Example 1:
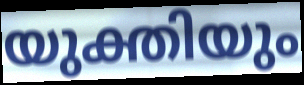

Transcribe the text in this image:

യുക്തിയും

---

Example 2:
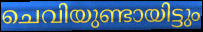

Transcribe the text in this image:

ചെവിയുണ്ടായിട്ടും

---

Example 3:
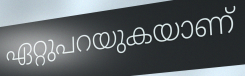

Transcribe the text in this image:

ഏറ്റുപറയുകയാണ്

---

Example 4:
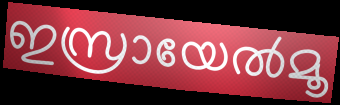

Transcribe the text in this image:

ഇസ്രായേൽമൂ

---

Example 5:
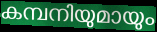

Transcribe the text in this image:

കമ്പനിയുമായും